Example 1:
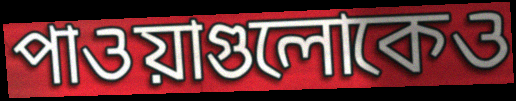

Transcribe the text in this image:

পাওয়াগুলোকেও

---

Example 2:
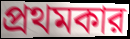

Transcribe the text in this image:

প্রথমকার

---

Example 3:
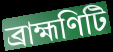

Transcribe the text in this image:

ব্রাহ্মণিটি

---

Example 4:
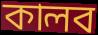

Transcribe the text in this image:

কালব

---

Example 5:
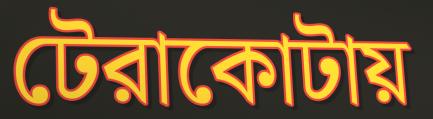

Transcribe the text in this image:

টেরাকোটায়